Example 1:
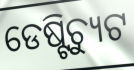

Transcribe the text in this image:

ଡେଷ୍ଟିଚ୍ୟୁଟ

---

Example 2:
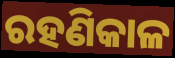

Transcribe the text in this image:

ରହଣିକାଳ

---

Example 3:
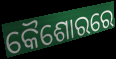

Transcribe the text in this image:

କୈଶୋରରେ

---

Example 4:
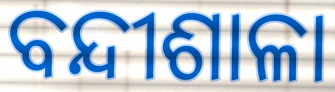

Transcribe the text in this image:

ବନ୍ଦୀଶାଳା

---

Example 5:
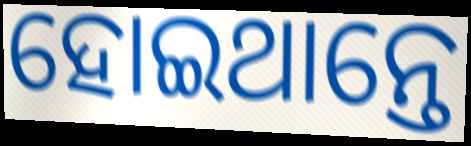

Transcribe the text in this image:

ହୋଇଥାନ୍ତେ